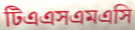
টিএএসএমএসি